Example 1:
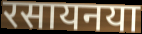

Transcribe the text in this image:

रसायनया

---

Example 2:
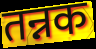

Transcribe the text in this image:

तन्नक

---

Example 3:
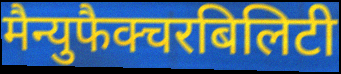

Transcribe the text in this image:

मैन्युफैक्चरबिलिटी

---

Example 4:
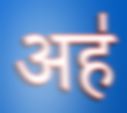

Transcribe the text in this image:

अह॑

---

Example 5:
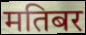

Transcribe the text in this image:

मतिबर